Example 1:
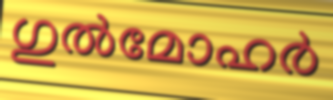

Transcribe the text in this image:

ഗുൽമോഹർ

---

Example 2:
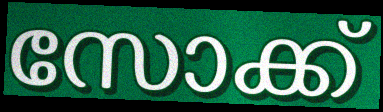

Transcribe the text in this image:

സോക്ക്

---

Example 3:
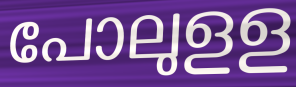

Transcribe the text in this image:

പോലുളള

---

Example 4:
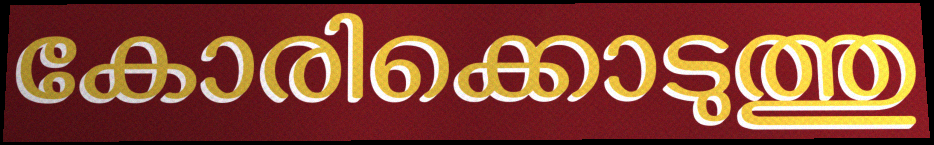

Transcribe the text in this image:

കോരിക്കൊടുത്തു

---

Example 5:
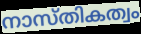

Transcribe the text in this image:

നാസ്തികത്വം